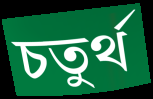
চতুৰ্থ